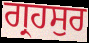
ਗ੍ਰਹਸੁਰ